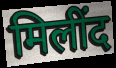
मिलींद